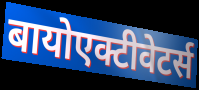
बायोएक्टीवेटर्स